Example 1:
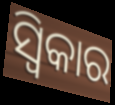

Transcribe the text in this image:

ସ୍ୱିକାର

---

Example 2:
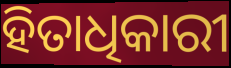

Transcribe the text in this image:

ହିତାଧିକାରୀ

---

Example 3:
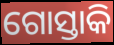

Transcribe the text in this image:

ଗୋସ୍ତାକି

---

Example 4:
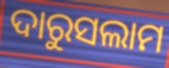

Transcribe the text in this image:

ଦାରୁସଲାମ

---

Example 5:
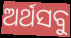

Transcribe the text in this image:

ଅର୍ଥସବୁ